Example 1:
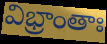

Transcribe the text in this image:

విభ్రాంతాః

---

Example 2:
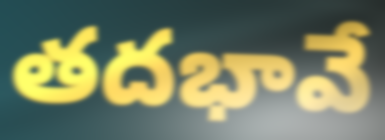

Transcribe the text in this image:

తదభావే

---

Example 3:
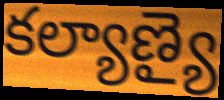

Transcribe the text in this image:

కల్యాణ్యై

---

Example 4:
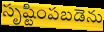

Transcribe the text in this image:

సృష్టింపబడెను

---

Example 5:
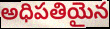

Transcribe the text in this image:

అధిపతియైన